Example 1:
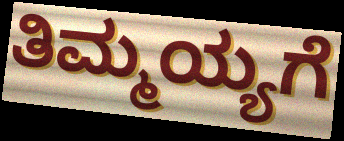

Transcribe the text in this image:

ತಿಮ್ಮಯ್ಯಗೆ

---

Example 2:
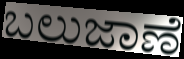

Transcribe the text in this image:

ಬಲುಜಾಣೆ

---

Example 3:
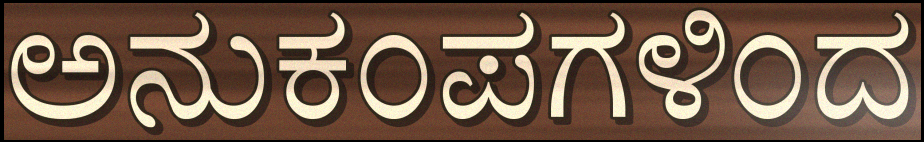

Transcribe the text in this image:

ಅನುಕಂಪಗಳಿಂದ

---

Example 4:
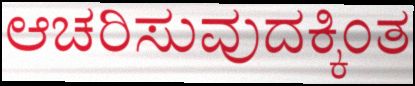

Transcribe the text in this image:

ಆಚರಿಸುವುದಕ್ಕಿಂತ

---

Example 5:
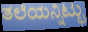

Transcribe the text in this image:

ತಲೆಯನ್ನಿಟ್ಟು